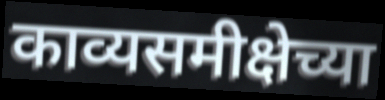
काव्यसमीक्षेच्या